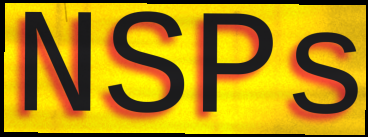
NSPs